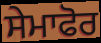
ਸੇਮਾਫੋਰ